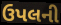
ઉપલની